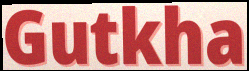
Gutkha